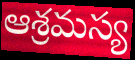
ఆశ్రమస్య